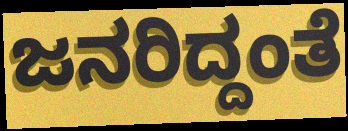
ಜನರಿದ್ದಂತೆ